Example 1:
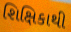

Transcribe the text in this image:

શિક્ષિકાથી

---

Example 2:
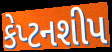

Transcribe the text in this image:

કેપ્ટનશીપ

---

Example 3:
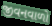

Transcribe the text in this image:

જીવનવાળો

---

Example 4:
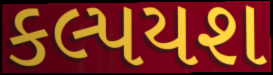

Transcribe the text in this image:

કલ્પયશ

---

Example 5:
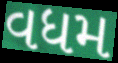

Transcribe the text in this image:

વધમ